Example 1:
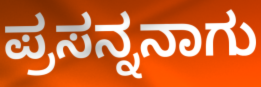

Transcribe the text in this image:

ಪ್ರಸನ್ನನಾಗು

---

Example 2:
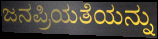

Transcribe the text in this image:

ಜನಪ್ರಿಯತೆಯನ್ನು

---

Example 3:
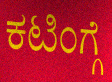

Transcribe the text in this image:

ಕಟಿಂಗ್ಗೆ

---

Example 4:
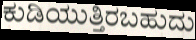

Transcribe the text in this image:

ಕುಡಿಯುತ್ತಿರಬಹುದು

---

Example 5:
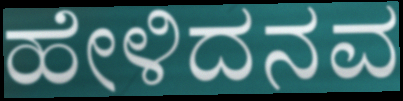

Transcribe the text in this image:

ಹೇಳಿದನವ